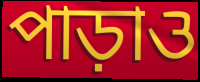
পাড়াও